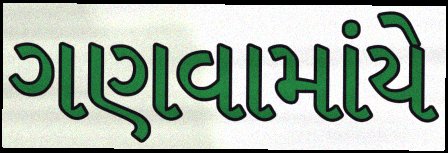
ગણવામાંયે